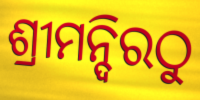
ଶ୍ରୀମନ୍ଦିରଠୁ